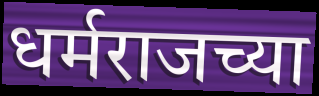
धर्मराजच्या